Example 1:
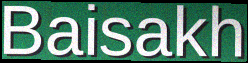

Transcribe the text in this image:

Baisakh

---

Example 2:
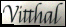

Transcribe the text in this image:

Vitthal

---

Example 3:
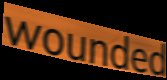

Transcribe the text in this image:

wounded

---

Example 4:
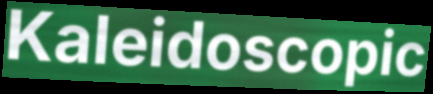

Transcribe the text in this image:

Kaleidoscopic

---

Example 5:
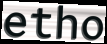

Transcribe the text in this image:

etho